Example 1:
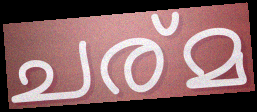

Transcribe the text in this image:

ചര്മ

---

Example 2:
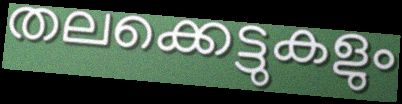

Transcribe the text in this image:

തലക്കെട്ടുകളും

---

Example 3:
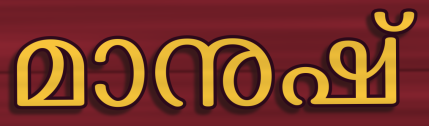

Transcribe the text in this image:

മാനുഷ്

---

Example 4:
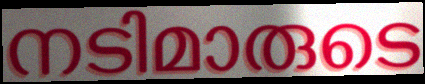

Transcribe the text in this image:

നടിമാരുടെ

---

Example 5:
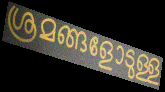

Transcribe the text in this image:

ശ്രമങ്ങളോടുള്ള